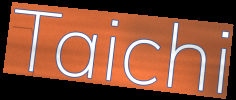
Taichi